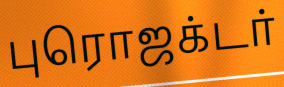
புரொஜக்டர்